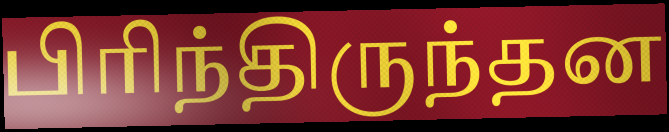
பிரிந்திருந்தன